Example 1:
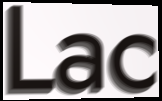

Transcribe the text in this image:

Lac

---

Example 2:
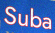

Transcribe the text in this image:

Suba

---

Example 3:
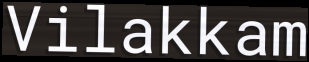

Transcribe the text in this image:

Vilakkam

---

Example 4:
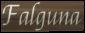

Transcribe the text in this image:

Falguna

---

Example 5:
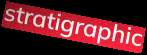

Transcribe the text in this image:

stratigraphic